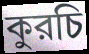
কুরচি